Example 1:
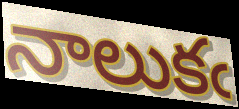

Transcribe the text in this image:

నాలుకఁ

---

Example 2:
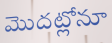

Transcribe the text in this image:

మొదట్లోనూ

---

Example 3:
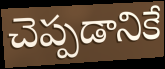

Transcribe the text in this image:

చెప్పడానికే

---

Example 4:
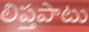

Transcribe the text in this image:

లిప్తపాటు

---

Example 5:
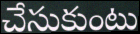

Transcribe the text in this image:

చేసుకుంటు